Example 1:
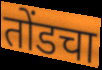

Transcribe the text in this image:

तोंडचा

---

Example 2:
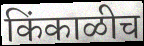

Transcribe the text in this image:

किंकाळीच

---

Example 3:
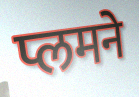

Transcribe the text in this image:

प्लमने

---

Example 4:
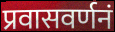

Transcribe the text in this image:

प्रवासवर्णनं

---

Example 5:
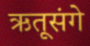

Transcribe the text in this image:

ऋतूसंगे